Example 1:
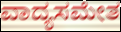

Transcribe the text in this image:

ವಾದ್ಯಸಮೇತ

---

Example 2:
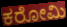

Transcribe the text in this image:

ಕರೋಮಿ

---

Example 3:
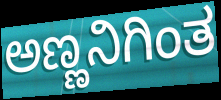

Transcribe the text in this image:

ಅಣ್ಣನಿಗಿಂತ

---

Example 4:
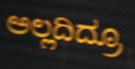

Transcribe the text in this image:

ಅಲ್ಲದಿದ್ರೂ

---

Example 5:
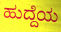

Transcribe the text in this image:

ಹುದ್ದೆಯ